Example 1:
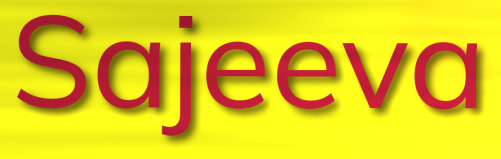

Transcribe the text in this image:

Sajeeva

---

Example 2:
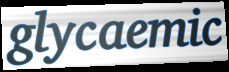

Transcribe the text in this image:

glycaemic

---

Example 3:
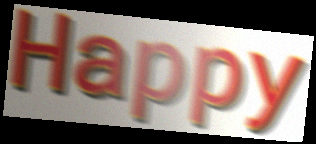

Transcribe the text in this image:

Happy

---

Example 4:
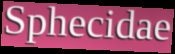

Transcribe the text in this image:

Sphecidae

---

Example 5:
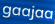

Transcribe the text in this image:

gaajaa